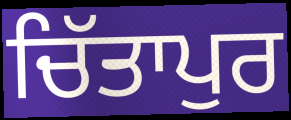
ਚਿੱਤਾਪੁਰ